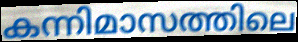
കന്നിമാസത്തിലെ